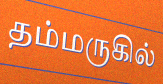
தம்மருகில்